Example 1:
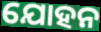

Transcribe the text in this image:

ଯୋହନ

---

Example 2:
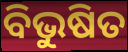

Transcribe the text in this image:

ବିଭୁଷିତ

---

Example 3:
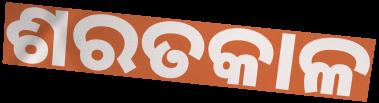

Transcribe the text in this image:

ଶରତକାଳ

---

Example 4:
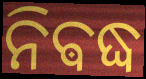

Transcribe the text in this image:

ନିଵଦ୍ଧ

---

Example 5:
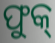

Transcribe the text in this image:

ଫୁକ୍